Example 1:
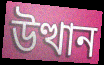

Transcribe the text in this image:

উত্থান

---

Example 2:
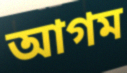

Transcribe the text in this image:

আগম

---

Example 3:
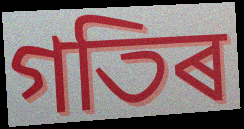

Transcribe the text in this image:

গতিৰ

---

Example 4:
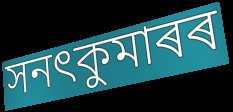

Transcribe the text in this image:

সনৎকুমাৰৰ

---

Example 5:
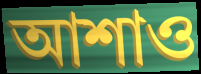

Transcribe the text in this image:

আশাও